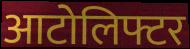
आटोलिफ्टर